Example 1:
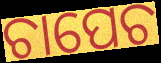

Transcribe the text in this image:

ଚାପେଚ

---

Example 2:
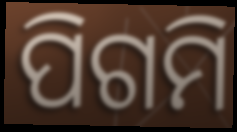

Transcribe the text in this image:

ପିଗମି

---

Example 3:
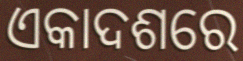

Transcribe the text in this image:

ଏକାଦଶରେ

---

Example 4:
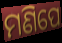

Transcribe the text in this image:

ମଣିପେ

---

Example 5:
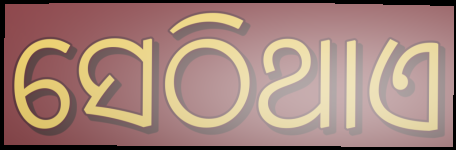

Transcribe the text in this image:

ସେଠିଥାଏ